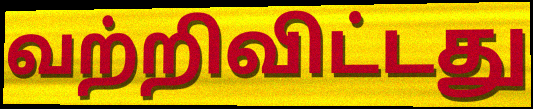
வற்றிவிட்டது